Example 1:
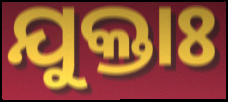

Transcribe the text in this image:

ଯୁକ୍ତାଃ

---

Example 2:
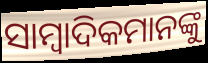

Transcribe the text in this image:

ସାମ୍ବାଦିକମାନଙ୍କୁ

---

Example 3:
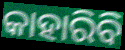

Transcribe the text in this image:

କାହାରିବି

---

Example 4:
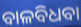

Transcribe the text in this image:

ବାଳବିଧବା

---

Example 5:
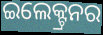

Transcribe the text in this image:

ଇଲେକ୍ଟ୍ରନର